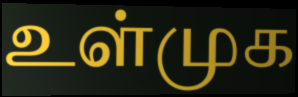
உள்முக